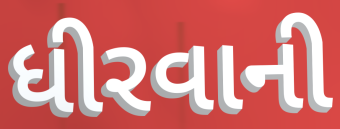
ધીરવાની